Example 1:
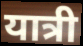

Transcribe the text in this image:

यात्री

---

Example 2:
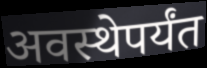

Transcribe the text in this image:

अवस्थेपर्यंत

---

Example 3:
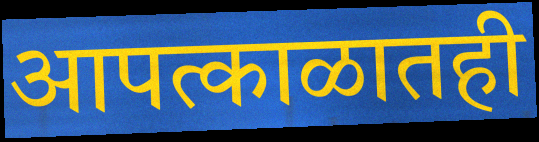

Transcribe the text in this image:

आपत्काळातही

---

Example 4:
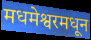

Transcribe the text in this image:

मधमेश्वरमधून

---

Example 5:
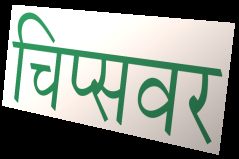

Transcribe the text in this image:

चिप्सवर